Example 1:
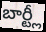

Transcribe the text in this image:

బార్ట్లీ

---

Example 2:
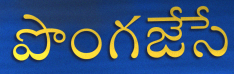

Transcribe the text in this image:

పొంగజేసే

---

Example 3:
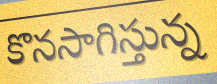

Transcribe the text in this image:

కొనసాగిస్తున్న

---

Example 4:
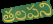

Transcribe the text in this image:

తలపని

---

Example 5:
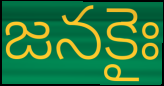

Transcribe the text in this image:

జనకైః